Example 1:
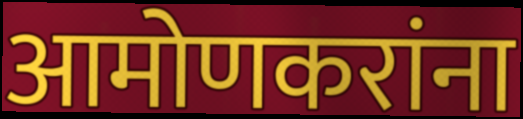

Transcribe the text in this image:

आमोणकरांना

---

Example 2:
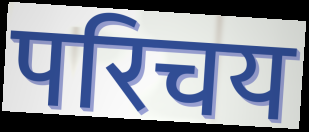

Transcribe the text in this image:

परिचय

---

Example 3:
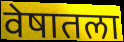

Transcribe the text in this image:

वेषातला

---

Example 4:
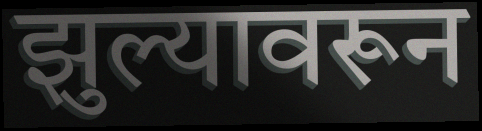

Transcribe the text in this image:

झुल्यावरून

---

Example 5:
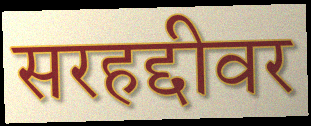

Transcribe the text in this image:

सरहद्दीवर